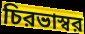
চিরভাস্বর